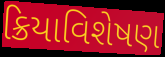
ક્રિયાવિશેષણ